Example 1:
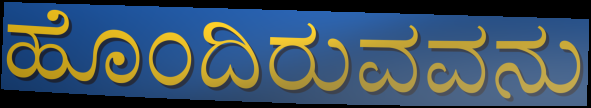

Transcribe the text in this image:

ಹೊಂದಿರುವವನು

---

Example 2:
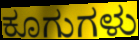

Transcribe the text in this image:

ಕೂಗುಗಳು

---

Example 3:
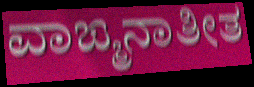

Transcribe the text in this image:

ವಾಙ್ಮನಾತೀತ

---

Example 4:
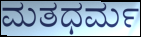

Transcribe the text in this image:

ಮತಧರ್ಮ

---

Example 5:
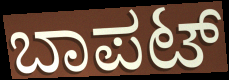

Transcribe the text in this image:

ಬಾಪಟ್